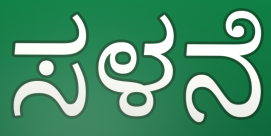
ಸಳನೆ